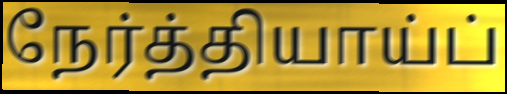
நேர்த்தியாய்ப்